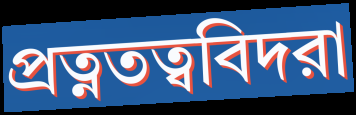
প্রত্নতত্ববিদরা